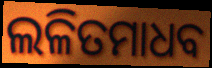
ଲଳିତମାଧବ